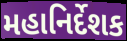
મહાનિર્દેશક